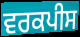
ਵਰਕਪੀਸ